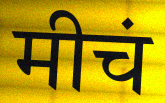
मीचं